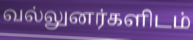
வல்லுனர்களிடம்